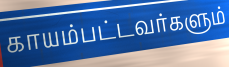
காயம்பட்டவர்களும்